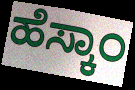
ಹೆಸ್ಕಾಂ